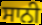
ਸਾਨੀ